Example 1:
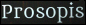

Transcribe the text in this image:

Prosopis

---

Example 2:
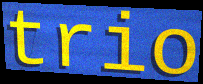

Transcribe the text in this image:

trio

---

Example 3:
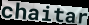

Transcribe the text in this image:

chaitar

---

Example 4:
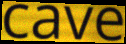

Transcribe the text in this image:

cave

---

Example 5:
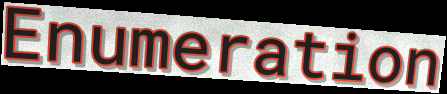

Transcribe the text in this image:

Enumeration